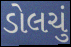
ડોલચું